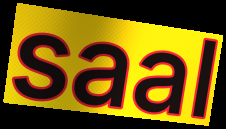
saal